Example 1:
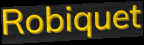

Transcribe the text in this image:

Robiquet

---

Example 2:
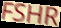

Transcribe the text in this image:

FSHR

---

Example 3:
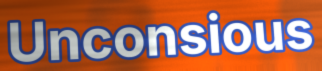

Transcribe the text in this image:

Unconsious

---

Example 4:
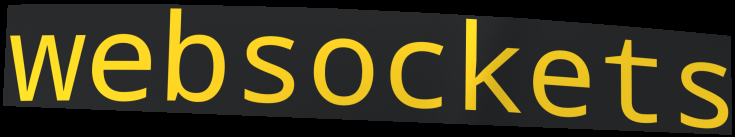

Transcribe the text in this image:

websockets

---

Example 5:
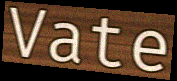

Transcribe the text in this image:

Vate